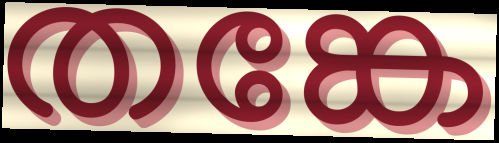
തങ്കേ